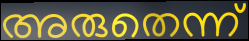
അരുതെന്ന്